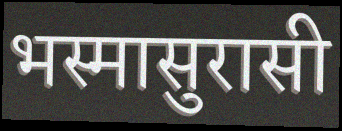
भस्मासुरासी